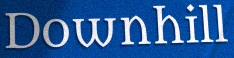
Downhill